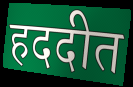
हददीत